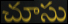
చూసు